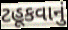
ટહૂકવાનું